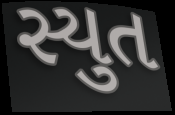
સ્યુત